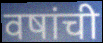
वषांची